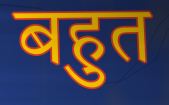
बहुत